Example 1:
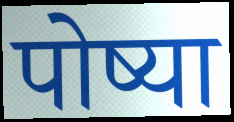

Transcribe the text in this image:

पोष्या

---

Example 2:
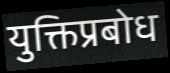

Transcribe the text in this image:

युक्तिप्रबोध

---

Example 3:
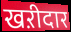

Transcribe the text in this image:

खऱीदार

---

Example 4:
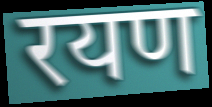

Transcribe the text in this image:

रयण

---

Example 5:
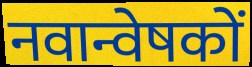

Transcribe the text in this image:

नवान्वेषकों